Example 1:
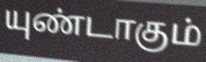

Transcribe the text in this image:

யுண்டாகும்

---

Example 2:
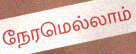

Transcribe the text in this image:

நேரமெல்லாம்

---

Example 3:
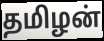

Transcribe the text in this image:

தமிழன்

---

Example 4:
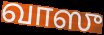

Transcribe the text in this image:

வாஸு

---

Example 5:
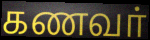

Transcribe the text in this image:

கணவர்